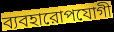
ব্যবহারোপযোগী